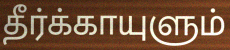
தீர்க்காயுளும்